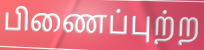
பிணைப்புற்ற